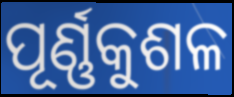
ପୂର୍ଣ୍ଣକୁଶଳ